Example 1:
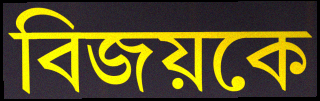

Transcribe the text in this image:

বিজয়কে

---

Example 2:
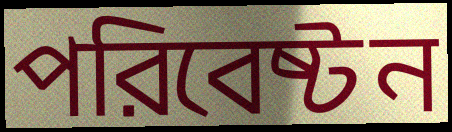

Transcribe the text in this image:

পরিবেষ্টন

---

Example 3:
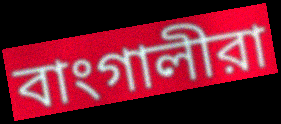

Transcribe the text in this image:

বাংগালীরা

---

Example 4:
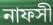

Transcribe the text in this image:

নাফসী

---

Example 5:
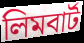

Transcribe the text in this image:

লিমবার্ট